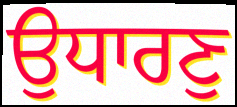
ਉਧਾਰਣੁ